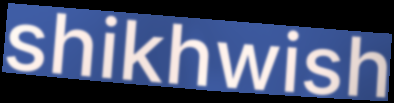
shikhwish